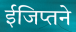
ईजिप्तने